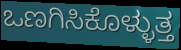
ಒಣಗಿಸಿಕೊಳ್ಳುತ್ತ